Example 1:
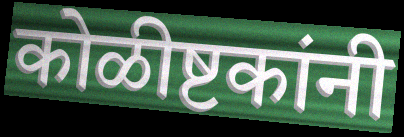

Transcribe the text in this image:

कोळीष्टकांनी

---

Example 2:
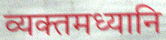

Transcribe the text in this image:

व्यक्तमध्यानि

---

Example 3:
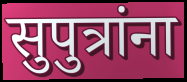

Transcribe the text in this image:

सुपुत्रांना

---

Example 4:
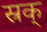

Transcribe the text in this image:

स्रक्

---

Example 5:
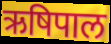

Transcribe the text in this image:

ऋषिपाल